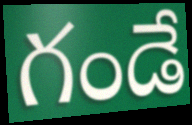
గండే